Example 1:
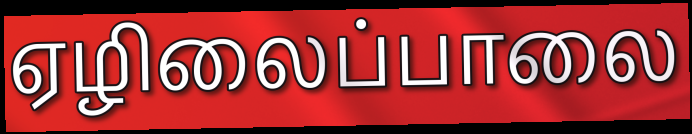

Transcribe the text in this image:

ஏழிலைப்பாலை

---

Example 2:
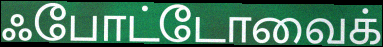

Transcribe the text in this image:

ஃபோட்டோவைக்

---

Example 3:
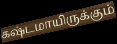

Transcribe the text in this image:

கஷ்டமாயிருக்கும்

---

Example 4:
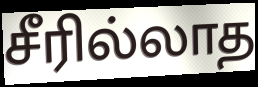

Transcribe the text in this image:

சீரில்லாத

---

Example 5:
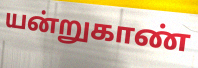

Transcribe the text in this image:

யன்றுகாண்